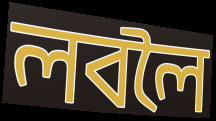
লবলৈ